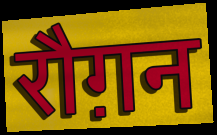
रौग़न